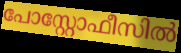
പോസ്റ്റോഫീസിൽ